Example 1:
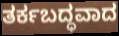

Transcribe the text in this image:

ತರ್ಕಬದ್ಧವಾದ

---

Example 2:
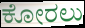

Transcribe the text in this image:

ಕೋರಲು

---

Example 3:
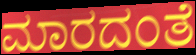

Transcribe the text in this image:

ಮಾರದಂತೆ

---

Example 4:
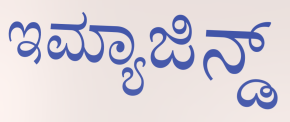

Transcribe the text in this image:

ಇಮ್ಯಾಜಿನ್ಡ್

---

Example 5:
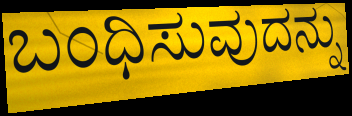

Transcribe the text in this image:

ಬಂಧಿಸುವುದನ್ನು